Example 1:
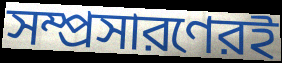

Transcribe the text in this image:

সম্প্রসারণেরই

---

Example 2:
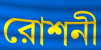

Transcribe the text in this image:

রোশনী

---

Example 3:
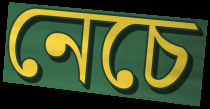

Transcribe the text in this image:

নেচে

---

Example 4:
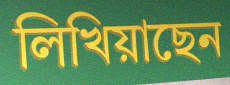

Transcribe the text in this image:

লিখিয়াছেন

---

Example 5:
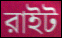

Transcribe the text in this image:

রাইট